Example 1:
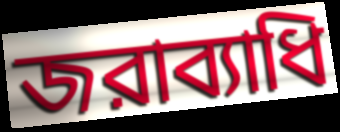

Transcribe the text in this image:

জরাব্যাধি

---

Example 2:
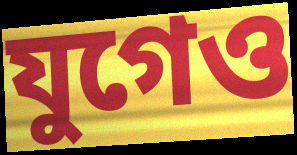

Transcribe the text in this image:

যুগেও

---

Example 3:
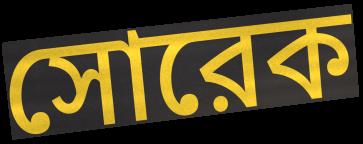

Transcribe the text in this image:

সোরেক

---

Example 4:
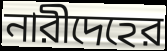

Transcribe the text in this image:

নারীদেহের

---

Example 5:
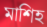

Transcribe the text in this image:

মাশিহ